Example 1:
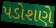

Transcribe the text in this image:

પડોશણે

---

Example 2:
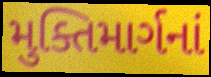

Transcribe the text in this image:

મુક્તિમાર્ગનાં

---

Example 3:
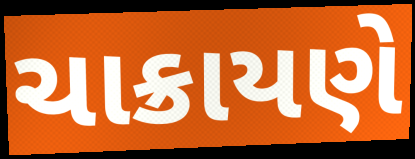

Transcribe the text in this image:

ચાક્રાયણે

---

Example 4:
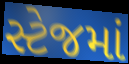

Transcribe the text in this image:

સ્ટેજમાં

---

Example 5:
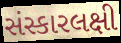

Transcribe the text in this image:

સંસ્કારલક્ષી